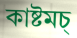
কাষ্টমচ্